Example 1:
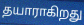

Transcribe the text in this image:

தயாராகிறது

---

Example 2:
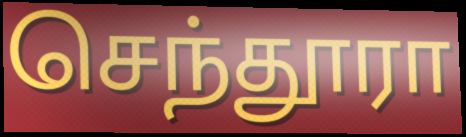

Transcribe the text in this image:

செந்தூரா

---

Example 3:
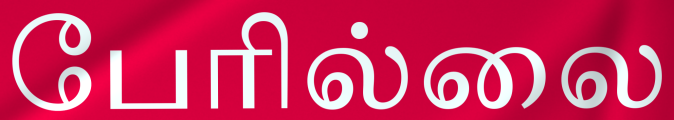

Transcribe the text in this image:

பேரில்லை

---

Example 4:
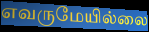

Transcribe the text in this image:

எவருமேயில்லை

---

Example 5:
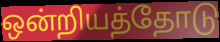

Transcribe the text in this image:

ஒன்றியத்தோடு